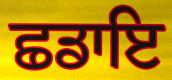
ਛਡਾਇ